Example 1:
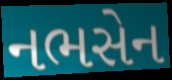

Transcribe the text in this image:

નભસેન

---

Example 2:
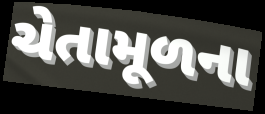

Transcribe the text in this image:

ચેતામૂળના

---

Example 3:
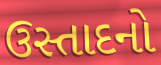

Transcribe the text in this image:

ઉસ્તાદનો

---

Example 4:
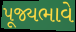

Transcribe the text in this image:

પૂજ્યભાવે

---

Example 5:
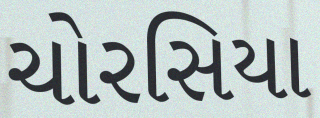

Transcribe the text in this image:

ચોરસિયા